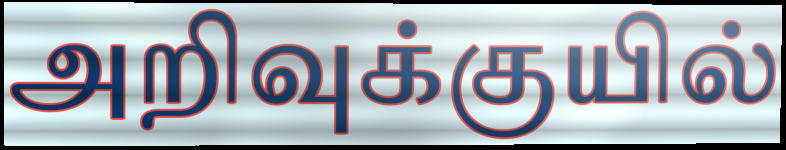
அறிவுக்குயில்